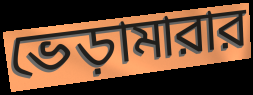
ভেড়ামারার